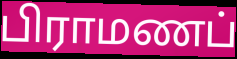
பிராமணப்